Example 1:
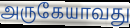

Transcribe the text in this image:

அருகேயாவது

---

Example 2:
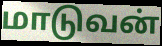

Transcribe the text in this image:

மாடுவன்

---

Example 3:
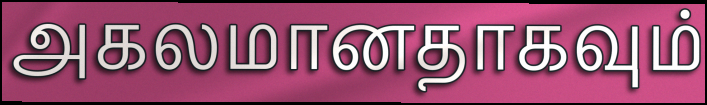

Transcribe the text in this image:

அகலமானதாகவும்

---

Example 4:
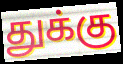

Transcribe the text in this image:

துக்கு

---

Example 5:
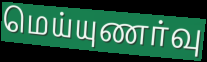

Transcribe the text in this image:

மெய்யுணர்வு